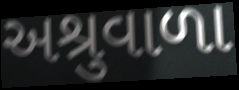
અશ્રુવાળા